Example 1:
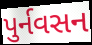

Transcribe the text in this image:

પુર્નવસન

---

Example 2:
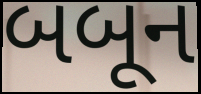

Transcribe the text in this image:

બબૂન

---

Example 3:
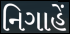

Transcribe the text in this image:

નિગાહેં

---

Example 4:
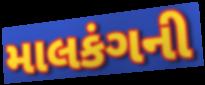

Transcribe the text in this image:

માલકંગની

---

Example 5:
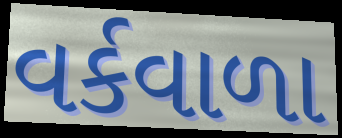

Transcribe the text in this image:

વર્કવાળા